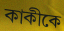
কাকীকে